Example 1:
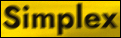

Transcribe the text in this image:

Simplex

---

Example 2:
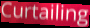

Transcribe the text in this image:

Curtailing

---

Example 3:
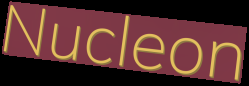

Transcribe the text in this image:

Nucleon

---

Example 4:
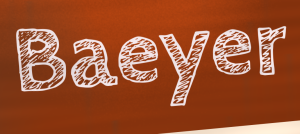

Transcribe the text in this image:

Baeyer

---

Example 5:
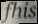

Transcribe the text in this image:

fhis